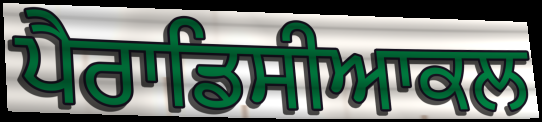
ਪੈਰਾਡਿਸੀਆਕਲ